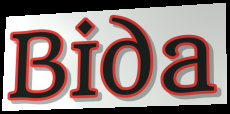
Bida